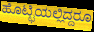
ಹೊಟ್ಟೆಯಲ್ಲಿದ್ದರೂ